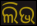
ଲିଭ